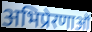
अभिप्रेरणाओं